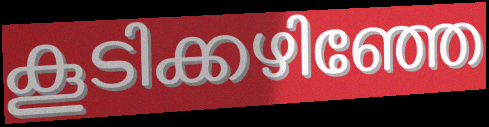
കൂടിക്കഴിഞ്ഞേ